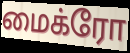
மைக்ரோ